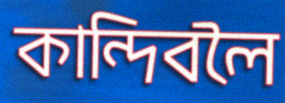
কান্দিবলৈ